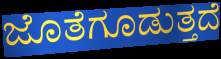
ಜೊತೆಗೂಡುತ್ತದೆ